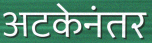
अटकेनंतर